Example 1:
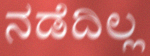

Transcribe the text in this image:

ನಡೆದಿಲ್ಲ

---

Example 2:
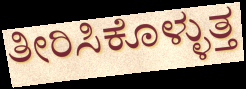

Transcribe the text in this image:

ತೀರಿಸಿಕೊಳ್ಳುತ್ತ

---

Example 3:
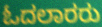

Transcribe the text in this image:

ಓದಲಾರರು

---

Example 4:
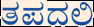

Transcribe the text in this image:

ತಪದಲಿ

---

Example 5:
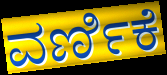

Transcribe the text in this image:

ವರ್ಣಿಕೆ